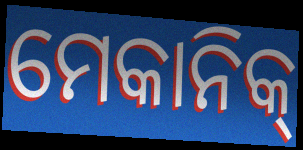
ମେକାନିକ୍